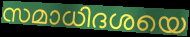
സമാധിദശയെ